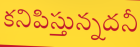
కనిపిస్తున్నదనీ